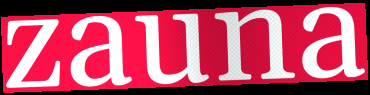
zauna